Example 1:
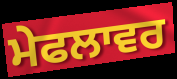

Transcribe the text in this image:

ਮੇਫਲਾਵਰ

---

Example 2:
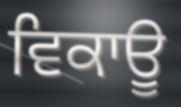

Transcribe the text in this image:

ਵਿਕਾਊ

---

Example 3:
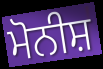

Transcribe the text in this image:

ਮੋਨੀਸ਼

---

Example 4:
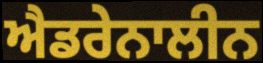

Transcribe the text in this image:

ਐਡਰੇਨਾਲੀਨ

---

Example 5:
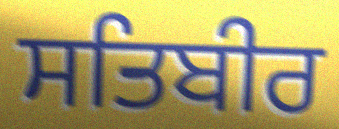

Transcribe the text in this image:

ਸਤਿਬੀਰ